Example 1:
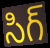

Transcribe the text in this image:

సిగ్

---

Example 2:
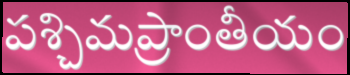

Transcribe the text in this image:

పశ్చిమప్రాంతీయం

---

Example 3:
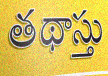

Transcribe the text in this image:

తథాస్తు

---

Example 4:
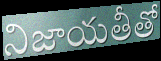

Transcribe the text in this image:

నిజాయతీతో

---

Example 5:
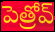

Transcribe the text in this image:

పెత్రోవ్